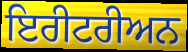
ਇਰੀਟਰੀਅਨ